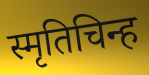
स्मृतिचिन्ह